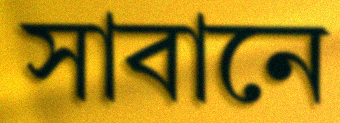
সাবানে